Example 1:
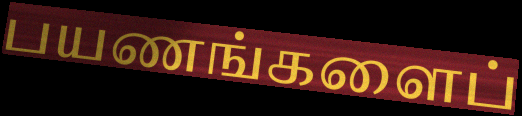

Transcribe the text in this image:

பயணங்களைப்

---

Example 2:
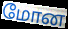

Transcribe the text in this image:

மோன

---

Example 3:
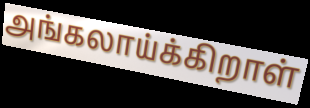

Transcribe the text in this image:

அங்கலாய்க்கிறாள்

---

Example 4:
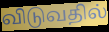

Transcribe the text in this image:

விடுவதில்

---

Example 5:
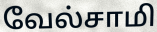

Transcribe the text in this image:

வேல்சாமி